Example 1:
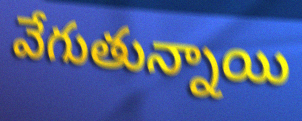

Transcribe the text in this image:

వేగుతున్నాయి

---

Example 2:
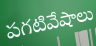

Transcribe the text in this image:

పగటివేషాలు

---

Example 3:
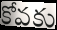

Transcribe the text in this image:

కోవకు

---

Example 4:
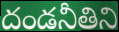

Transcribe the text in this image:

దండనీతిని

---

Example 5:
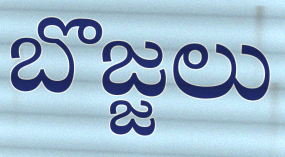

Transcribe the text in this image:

బొజ్జలు